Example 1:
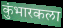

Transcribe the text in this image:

कुंभारकला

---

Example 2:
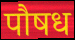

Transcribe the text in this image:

पौषध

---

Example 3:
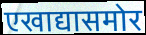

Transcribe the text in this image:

एखाद्यासमोर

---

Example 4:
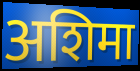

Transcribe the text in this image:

अशिमा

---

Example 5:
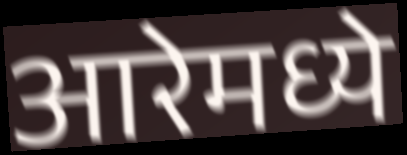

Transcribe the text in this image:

आरेमध्ये